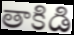
తాకిడి